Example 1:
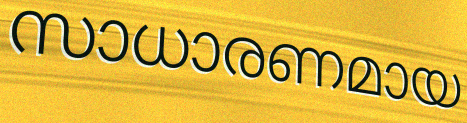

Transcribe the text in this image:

സാധാരണമായ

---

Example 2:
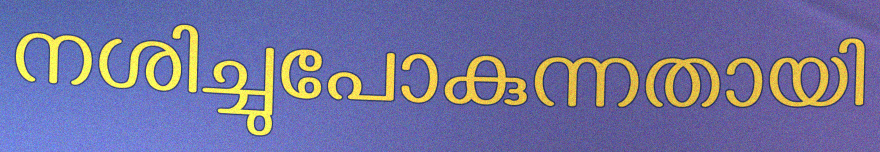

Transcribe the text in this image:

നശിച്ചുപോകുന്നതായി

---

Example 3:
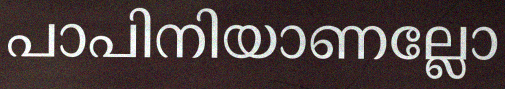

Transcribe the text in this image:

പാപിനിയാണല്ലോ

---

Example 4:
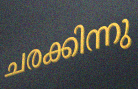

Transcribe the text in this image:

ചരക്കിന്നു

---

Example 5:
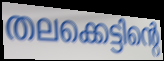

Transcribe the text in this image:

തലക്കെട്ടിന്റെ